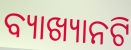
ବ୍ୟାଖ୍ୟାନଟି